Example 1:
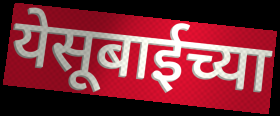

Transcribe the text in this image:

येसूबाईच्या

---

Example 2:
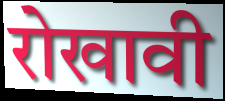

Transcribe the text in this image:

रोखावी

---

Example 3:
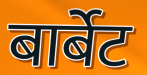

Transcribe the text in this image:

बार्बेट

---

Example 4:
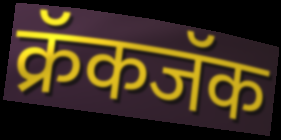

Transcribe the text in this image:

क्रॅकजॅक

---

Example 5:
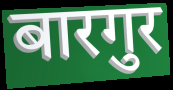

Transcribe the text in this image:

बारगुर